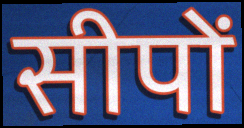
सीपों